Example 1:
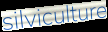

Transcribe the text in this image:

silviculture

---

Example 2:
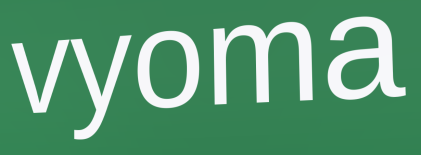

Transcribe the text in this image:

vyoma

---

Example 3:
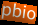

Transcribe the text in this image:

pbio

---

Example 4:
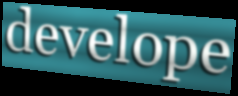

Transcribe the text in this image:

develope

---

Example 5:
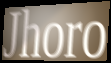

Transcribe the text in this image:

Jhoro